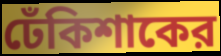
ঢেঁকিশাকের